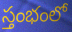
స్తంభంలో